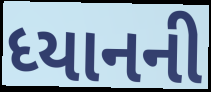
ધ્યાનની